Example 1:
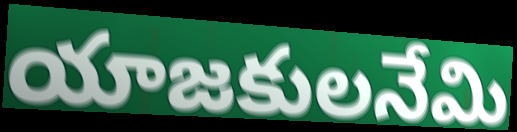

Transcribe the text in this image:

యాజకులనేమి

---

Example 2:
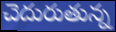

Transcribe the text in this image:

చెదురుతున్న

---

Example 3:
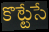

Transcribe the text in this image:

కొట్టేసే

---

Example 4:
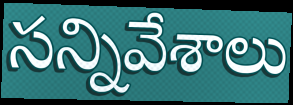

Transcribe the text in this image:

సన్నివేశాలు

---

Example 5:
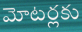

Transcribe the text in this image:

మోటర్లకు